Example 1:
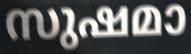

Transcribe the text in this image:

സുഷമാ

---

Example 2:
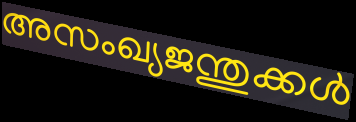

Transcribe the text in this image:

അസംഖ്യജന്തുക്കൾ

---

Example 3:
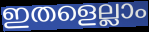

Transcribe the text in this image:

ഇതളെല്ലാം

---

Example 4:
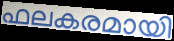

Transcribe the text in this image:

ഫലകരമായി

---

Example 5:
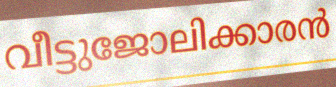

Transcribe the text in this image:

വീട്ടുജോലിക്കാരൻ